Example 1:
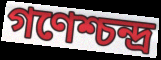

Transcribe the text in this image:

গণেশ্চন্দ্র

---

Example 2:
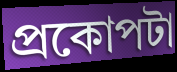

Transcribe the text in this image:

প্রকোপটা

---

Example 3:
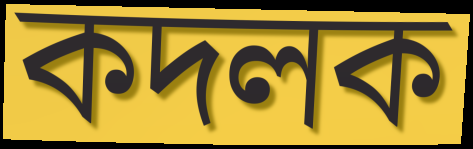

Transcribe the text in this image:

কদলক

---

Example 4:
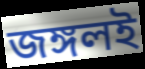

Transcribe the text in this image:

জঙ্গলই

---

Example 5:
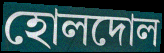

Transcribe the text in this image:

হোলদোল